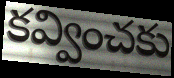
కవ్వించకు